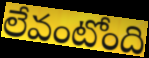
లేవంటోంది